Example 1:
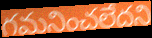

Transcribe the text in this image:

గమనించలేదని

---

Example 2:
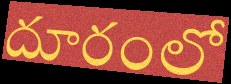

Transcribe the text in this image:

దూరంలో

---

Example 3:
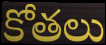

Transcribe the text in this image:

కోతలు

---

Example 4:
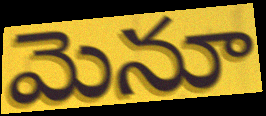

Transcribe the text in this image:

మెనూ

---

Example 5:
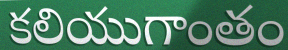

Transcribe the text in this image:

కలియుగాంతం